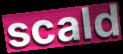
scald